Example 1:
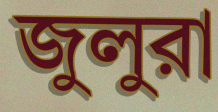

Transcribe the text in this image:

জুলুরা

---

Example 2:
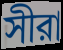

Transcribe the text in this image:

সীরা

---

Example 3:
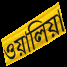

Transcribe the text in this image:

ওয়ালিয়া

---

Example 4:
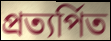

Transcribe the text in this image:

প্রত্যর্পিত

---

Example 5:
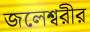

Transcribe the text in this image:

জলেশ্বরীর